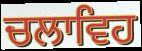
ਚਲਾਵਿਹ